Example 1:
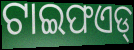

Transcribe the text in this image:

ଟାଇଫଏଡ୍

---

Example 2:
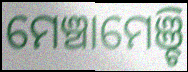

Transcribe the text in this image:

ମେଞ୍ଚାମେଞ୍ଚି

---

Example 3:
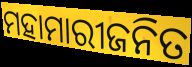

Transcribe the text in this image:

ମହାମାରୀଜନିତ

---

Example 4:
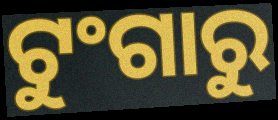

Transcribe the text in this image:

ଟୁଂଗାରୁ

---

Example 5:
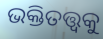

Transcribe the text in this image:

ଭକ୍ତିତତ୍ତ୍ୱକୁ